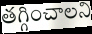
తగ్గించాలని